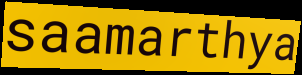
saamarthya